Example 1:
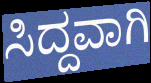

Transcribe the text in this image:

ಸಿದ್ದವಾಗಿ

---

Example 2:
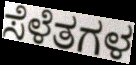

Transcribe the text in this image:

ಸೆಳೆತಗಳ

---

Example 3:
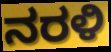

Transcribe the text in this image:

ನರಳಿ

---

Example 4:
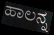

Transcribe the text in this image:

ಹಾಲನ್ನ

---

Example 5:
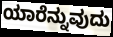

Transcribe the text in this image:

ಯಾರೆನ್ನುವುದು